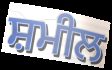
ਸ਼ਮੀਲ